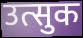
उत्सुक